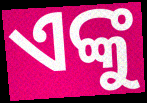
ଏଙ୍କୁ